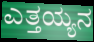
ಎತ್ತಯ್ಯನ